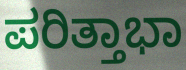
ಪರಿತ್ತಾಭಾ